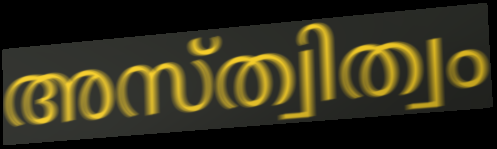
അസ്ത്വിത്വം